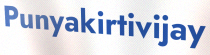
Punyakirtivijay